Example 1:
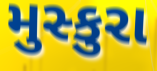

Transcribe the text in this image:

મુસ્કુરા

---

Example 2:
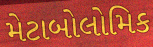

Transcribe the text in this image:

મેટાબોલોમિક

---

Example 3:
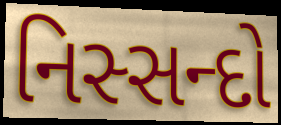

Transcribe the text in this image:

નિસ્સન્દો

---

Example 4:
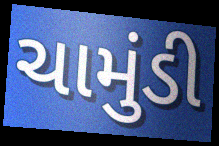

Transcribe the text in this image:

ચામુંડી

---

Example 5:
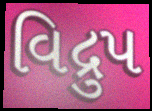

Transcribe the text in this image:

વિદ્રુપ